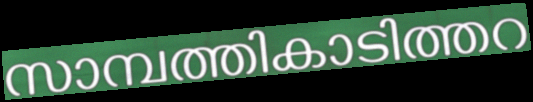
സാമ്പത്തികാടിത്തറ